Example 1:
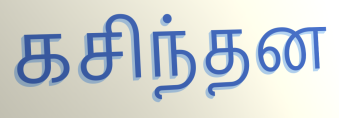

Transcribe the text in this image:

கசிந்தன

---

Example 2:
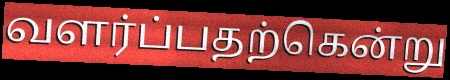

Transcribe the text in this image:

வளர்ப்பதற்கென்று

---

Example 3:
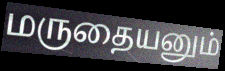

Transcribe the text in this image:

மருதையனும்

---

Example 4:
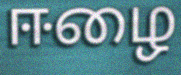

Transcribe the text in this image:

ஈழை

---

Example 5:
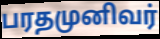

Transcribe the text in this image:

பரதமுனிவர்